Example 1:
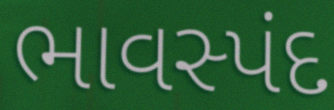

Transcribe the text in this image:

ભાવસ્પંદ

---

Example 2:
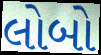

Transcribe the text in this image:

લોબો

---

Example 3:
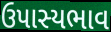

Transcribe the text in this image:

ઉપાસ્યભાવ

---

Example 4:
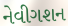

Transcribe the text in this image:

નેવીગશન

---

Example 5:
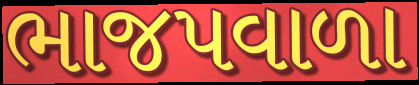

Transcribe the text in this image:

ભાજપવાળા